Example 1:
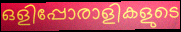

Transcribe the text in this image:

ഒളിപ്പോരാളികളുടെ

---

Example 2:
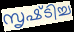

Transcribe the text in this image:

സൃഷ്‌ടിച്ച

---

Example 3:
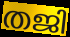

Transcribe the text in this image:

തജി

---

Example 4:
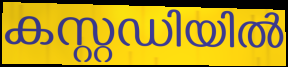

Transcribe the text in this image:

കസ്റ്റഡിയിൽ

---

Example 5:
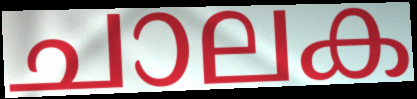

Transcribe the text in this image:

ചാലക